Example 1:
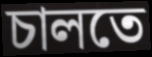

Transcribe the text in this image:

চালতে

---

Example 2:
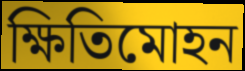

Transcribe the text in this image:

ক্ষিতিমোহন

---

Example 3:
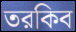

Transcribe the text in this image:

তরকিব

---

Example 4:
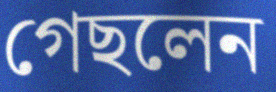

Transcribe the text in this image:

গেছলেন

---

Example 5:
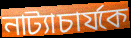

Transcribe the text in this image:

নাট্যাচার্যকে